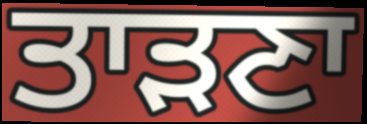
ਤਾੜਣਾ